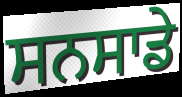
ਸਨਸਾਡੇ